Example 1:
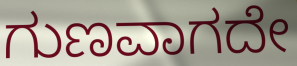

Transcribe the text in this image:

ಗುಣವಾಗದೇ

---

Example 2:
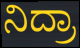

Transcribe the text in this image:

ನಿದ್ರಾ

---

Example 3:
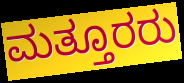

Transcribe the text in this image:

ಮತ್ತೂರರು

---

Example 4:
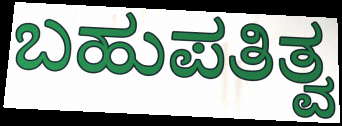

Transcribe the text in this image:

ಬಹುಪತಿತ್ವ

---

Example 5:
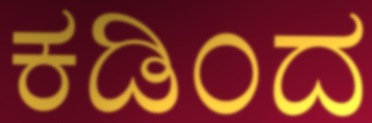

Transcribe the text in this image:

ಕಡಿಂದ